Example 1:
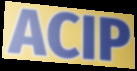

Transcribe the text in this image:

ACIP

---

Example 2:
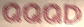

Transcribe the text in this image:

QQQD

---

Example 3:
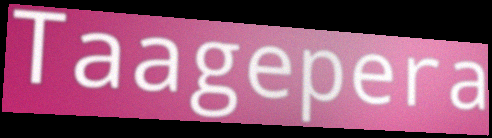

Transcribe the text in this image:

Taagepera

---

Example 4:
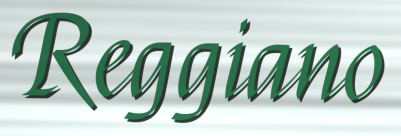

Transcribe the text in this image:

Reggiano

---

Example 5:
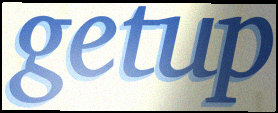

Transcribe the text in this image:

getup